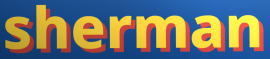
sherman